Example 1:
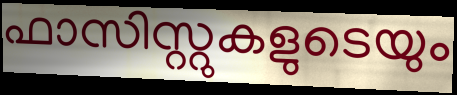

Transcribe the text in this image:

ഫാസിസ്റ്റുകളുടെയും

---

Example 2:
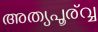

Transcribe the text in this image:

അത്യപൂര്വ്വ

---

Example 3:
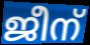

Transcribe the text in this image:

ജീന്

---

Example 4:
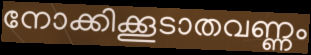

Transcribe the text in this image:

നോക്കിക്കൂടാതവണ്ണം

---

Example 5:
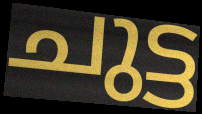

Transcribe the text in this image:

ചുട്ട